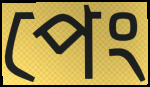
পেং